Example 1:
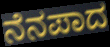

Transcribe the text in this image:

ನೆನಪಾದ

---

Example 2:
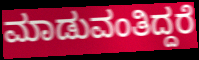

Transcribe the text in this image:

ಮಾಡುವಂತಿದ್ದರೆ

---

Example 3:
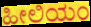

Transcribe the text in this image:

ಹೀಲಿಯಂ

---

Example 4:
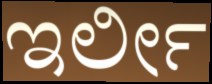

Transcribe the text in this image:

ಇರ್ಲೀ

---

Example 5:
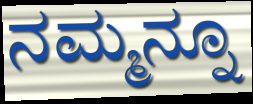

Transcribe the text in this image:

ನಮ್ಮನ್ನೂ